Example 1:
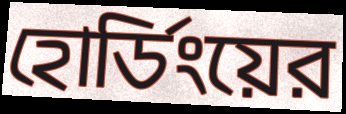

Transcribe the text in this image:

হোর্ডিংয়ের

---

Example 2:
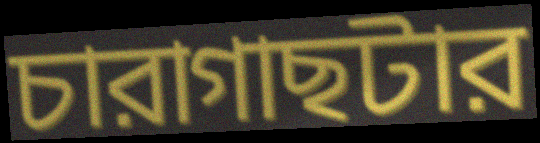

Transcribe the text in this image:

চারাগাছটার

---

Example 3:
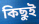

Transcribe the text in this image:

কিছুই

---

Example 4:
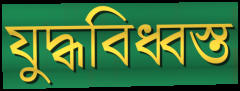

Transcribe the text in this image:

যুদ্ধবিধ্বস্ত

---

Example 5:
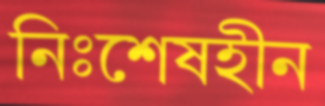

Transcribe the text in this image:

নিঃশেষহীন